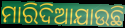
ମାରିଦିଆଯାଉଛି